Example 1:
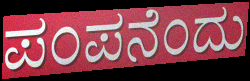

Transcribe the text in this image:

ಪಂಪನೆಂದು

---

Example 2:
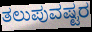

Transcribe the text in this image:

ತಲುಪುವಷ್ಟರ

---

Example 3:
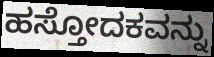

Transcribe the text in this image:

ಹಸ್ತೋದಕವನ್ನು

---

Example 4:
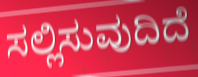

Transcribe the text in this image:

ಸಲ್ಲಿಸುವುದಿದೆ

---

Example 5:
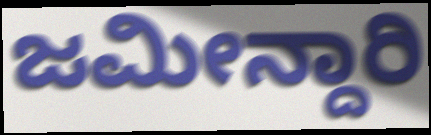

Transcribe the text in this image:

ಜಮೀನ್ದಾರಿ